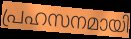
പ്രഹസനമായി